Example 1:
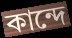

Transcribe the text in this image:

কান্দে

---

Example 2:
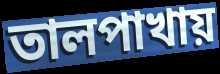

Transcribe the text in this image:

তালপাখায়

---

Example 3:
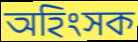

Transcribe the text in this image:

অহিংসক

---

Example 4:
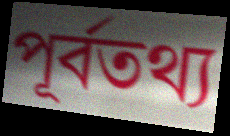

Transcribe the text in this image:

পূর্বতথ্য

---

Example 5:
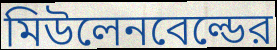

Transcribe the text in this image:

মিউলেনবেল্ডের